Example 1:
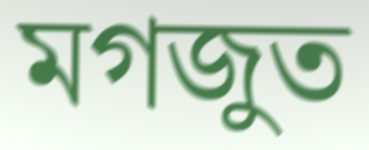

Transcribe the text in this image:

মগজুত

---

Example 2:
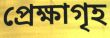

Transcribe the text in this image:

প্ৰেক্ষাগৃহ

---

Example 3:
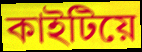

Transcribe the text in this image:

কাইটিয়ে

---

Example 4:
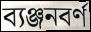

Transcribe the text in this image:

ব্যঞ্জনবৰ্ণ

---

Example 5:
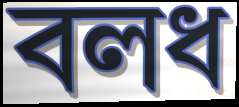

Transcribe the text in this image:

বলধ